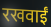
रखवाईं